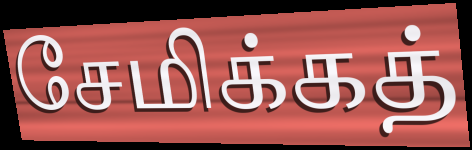
சேமிக்கத்